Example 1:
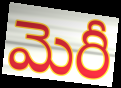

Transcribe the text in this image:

మెరీ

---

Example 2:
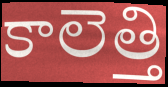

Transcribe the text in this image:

కాలెత్తి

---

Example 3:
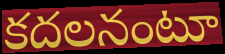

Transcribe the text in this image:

కదలనంటూ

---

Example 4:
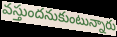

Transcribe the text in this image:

వస్తుందనుకుంటున్నారు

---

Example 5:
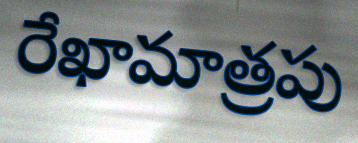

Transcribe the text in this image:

రేఖామాత్రపు